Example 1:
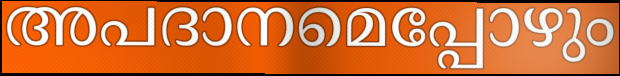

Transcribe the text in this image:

അപദാനമെപ്പോഴും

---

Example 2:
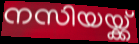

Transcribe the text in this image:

നസിയയ്ക്ക്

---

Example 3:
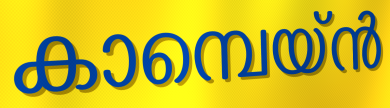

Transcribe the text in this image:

കാമ്പെയ്ൻ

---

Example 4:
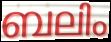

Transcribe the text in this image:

ബലിം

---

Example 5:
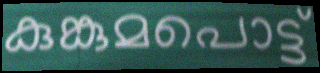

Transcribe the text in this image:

കുങ്കുമപൊട്ട്